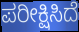
ಪರೀಕ್ಷಿಸಿದೆ